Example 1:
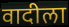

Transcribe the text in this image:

वादीला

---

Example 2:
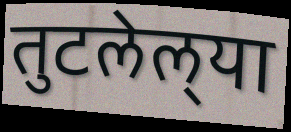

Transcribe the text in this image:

तुटलेल्या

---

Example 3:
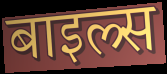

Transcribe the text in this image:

बाइल्स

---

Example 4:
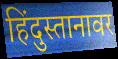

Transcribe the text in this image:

हिंदुस्तानावर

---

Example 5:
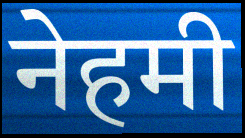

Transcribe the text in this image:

नेहमी